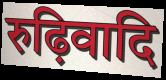
रुढ़िवादि